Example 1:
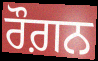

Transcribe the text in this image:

ਰੌਗ਼ਨ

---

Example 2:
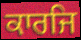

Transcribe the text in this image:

ਕਾਰਜਿ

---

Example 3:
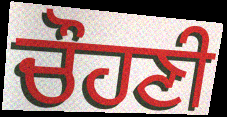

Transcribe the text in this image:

ਚੌਹਣੀ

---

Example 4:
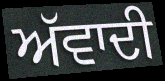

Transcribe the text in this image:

ਅੱਵਾਦੀ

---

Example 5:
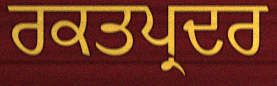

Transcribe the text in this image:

ਰਕਤਪ੍ਰਦਰ